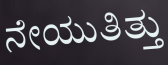
ನೇಯುತಿತ್ತು